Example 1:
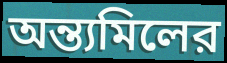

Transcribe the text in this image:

অন্ত্যমিলের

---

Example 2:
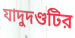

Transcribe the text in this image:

যাদুদণ্ডটির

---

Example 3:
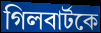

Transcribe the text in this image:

গিলবার্টকে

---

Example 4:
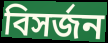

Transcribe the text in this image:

বিসর্জন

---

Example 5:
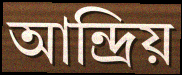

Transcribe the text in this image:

আন্দ্রিয়